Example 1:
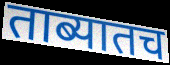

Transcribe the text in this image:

ताब्यातच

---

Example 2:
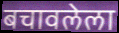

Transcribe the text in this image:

बचावलेला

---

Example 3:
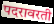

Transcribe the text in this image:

पदरावरती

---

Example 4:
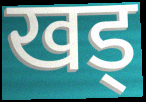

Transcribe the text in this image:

खड्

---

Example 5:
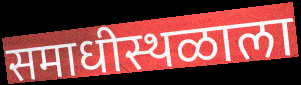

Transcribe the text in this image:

समाधीस्थळाला